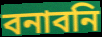
বনাবনি